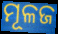
ମୂଳଜ